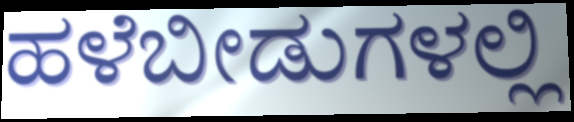
ಹಳೆಬೀಡುಗಳಲ್ಲಿ